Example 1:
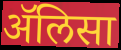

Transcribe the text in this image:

ॲलिसा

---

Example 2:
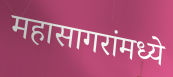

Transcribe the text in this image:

महासागरांमध्ये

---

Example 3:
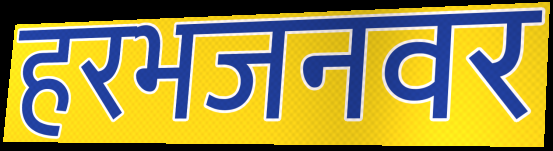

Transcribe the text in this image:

हरभजनवर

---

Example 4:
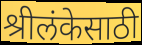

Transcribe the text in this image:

श्रीलंकेसाठी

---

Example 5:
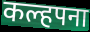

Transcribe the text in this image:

कल्हपना